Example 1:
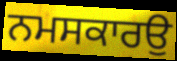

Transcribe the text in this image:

ਨਮਸਕਾਰਉ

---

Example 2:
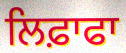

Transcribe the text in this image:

ਲਿਫ਼ਾਫਾ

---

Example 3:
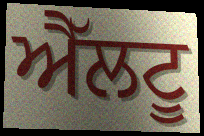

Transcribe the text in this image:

ਐੱਲਟੂ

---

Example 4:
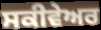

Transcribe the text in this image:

ਸਕੀਵੇਅਰ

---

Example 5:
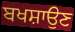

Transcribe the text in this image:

ਬਖਸ਼ਾਉਣ